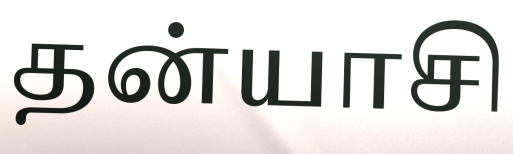
தன்யாசி